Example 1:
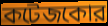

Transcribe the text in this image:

কটেজকোর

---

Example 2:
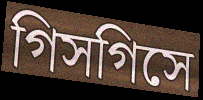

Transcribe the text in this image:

গিসগিসে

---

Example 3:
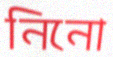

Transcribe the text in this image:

নিনো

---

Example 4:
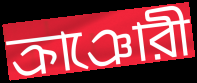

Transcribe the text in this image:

ক্রাঞোরী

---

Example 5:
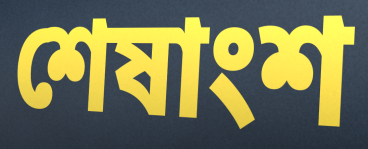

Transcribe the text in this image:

শেষাংশ